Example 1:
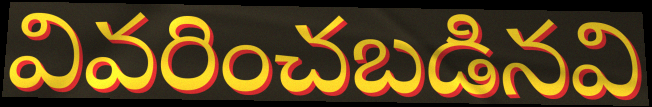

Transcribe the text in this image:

వివరించబడినవి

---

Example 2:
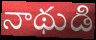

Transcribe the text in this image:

నాథుడి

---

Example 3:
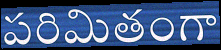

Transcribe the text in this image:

పరిమితంగా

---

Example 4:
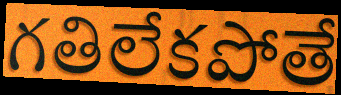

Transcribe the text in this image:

గతిలేకపోతే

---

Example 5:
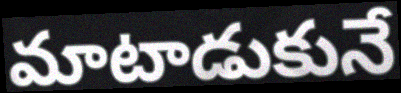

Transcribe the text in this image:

మాటాడుకునే